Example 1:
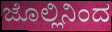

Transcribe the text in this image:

ಜೊಲ್ಲಿನಿಂದ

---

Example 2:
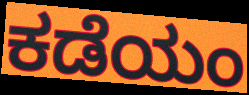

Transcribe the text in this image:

ಕಡೆಯಂ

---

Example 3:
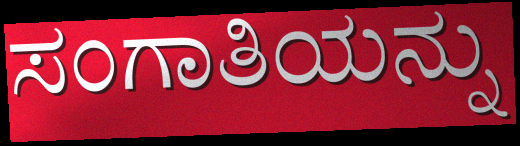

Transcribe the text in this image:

ಸಂಗಾತಿಯನ್ನು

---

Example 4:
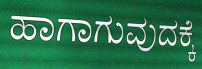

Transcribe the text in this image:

ಹಾಗಾಗುವುದಕ್ಕೆ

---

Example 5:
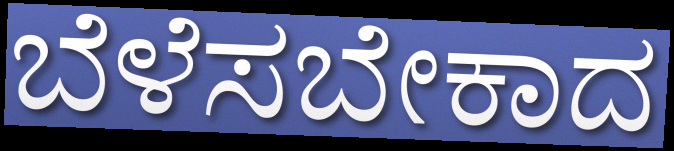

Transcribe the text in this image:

ಬೆಳೆಸಬೇಕಾದ